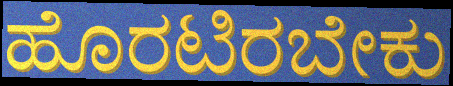
ಹೊರಟಿರಬೇಕು